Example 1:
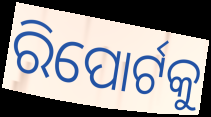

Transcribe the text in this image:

ରିପୋର୍ଟକୁ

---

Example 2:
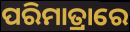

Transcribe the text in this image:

ପରିମାତ୍ରାରେ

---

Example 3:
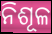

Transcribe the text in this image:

ନିଶୂଳ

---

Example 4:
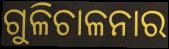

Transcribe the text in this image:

ଗୁଳିଚାଳନାର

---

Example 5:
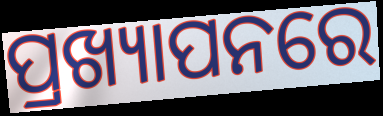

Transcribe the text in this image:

ପ୍ରଖ୍ୟାପନରେ